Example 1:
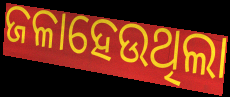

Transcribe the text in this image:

ଜଳାହେଉଥିଲା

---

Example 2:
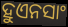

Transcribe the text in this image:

ହୁଏନସାଂ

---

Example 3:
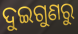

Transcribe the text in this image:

ଦୁଇଗୁଣରୁ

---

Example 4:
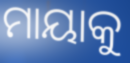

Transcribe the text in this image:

ମାୟାକୁ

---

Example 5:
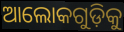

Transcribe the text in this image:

ଆଲୋକଗୁଡ଼ିକୁ